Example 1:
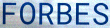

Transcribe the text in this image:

FORBES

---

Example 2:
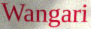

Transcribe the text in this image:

Wangari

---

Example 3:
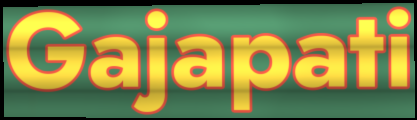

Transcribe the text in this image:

Gajapati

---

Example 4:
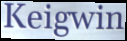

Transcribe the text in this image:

Keigwin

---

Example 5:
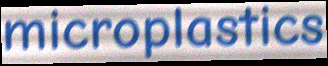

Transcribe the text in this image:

microplastics